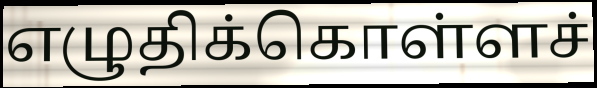
எழுதிக்கொள்ளச்